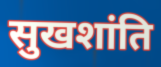
सुखशांति